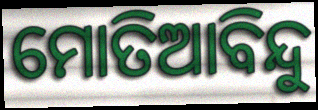
ମୋତିଆବିନ୍ଦୁ